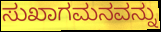
ಸುಖಾಗಮನವನ್ನು